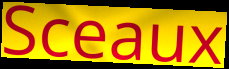
Sceaux